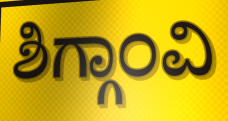
ಶಿಗ್ಗಾಂವಿ